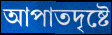
আপাতদৃষ্টে